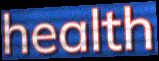
health